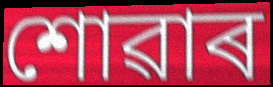
শোৱাৰ